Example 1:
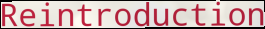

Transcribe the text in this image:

Reintroduction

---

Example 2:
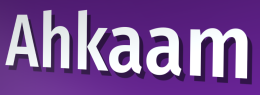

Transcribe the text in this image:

Ahkaam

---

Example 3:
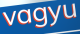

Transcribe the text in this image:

vagyu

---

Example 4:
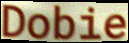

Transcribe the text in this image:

Dobie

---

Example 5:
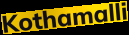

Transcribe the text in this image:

Kothamalli